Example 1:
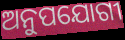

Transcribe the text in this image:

ଅନୁପଯୋଗୀ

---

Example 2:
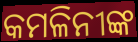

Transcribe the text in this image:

କମଳିନୀଙ୍କ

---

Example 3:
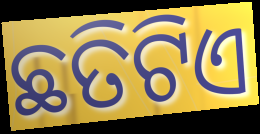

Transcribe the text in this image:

ଛତିଟିଏ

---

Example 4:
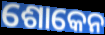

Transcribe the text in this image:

ଶୋକେନ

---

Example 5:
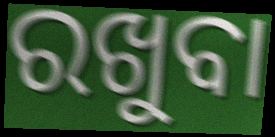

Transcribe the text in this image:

ରଖୁବା